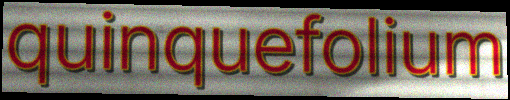
quinquefolium